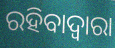
ରହିବାଦ୍ଵାରା